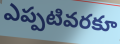
ఎప్పటివరకూ